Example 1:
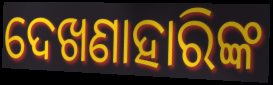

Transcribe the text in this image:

ଦେଖଣାହାରିଙ୍କ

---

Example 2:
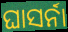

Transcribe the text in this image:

ଘାସର୍ନା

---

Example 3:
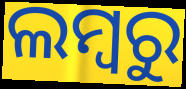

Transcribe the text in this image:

ଲମ୍ବରୁ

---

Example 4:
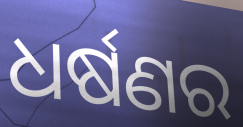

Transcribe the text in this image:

ଧର୍ଷଣର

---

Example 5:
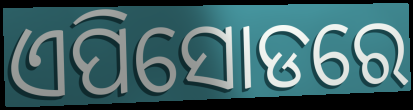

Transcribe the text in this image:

ଏପିସୋଡରେ